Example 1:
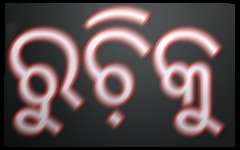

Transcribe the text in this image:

ରୁଚ଼ିକୁ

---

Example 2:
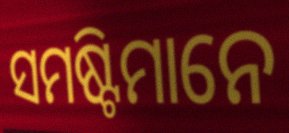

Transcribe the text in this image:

ସମଷ୍ଟିମାନେ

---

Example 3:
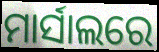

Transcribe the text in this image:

ମାର୍ସାଲରେ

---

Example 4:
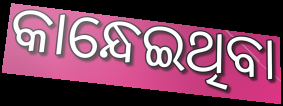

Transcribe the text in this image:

କାନ୍ଧେଇଥିବା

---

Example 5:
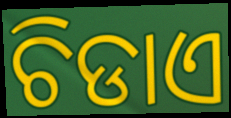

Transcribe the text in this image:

ଚିଡାଏ